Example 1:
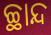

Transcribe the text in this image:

ଚ୍ଛାନ୍ଦ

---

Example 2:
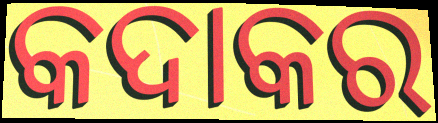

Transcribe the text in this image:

କଦାକର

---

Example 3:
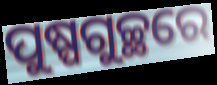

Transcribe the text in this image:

ପୁଷ୍ପଗୁଚ୍ଛରେ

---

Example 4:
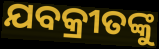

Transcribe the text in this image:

ଯବକ୍ରୀତଙ୍କୁ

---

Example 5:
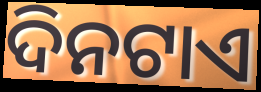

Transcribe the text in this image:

ଦିନଟାଏ